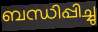
ബന്ധിപ്പിച്ചു